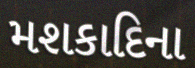
મશકાદિના